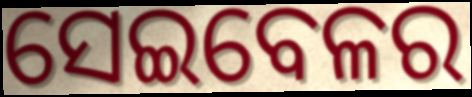
ସେଇବେଳର